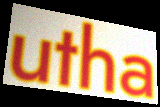
utha